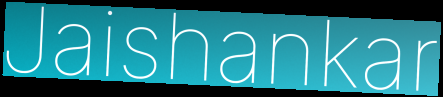
Jaishankar